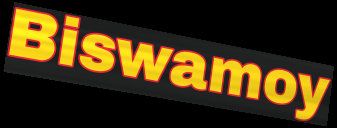
Biswamoy